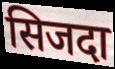
सिजदा